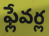
ఫ్లేవర్ల